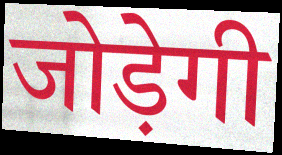
जोड़ेगी